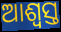
ଆଶ୍ଵସ୍ତ